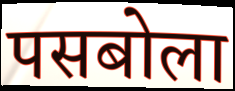
पसबोला